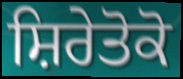
ਸ਼ਿਰੇਤੋਕੋ